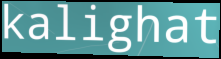
kalighat